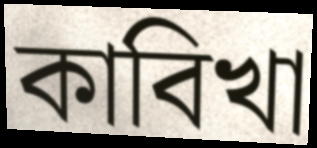
কাবিখা